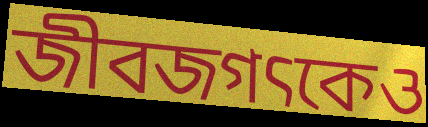
জীবজগৎকেও